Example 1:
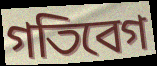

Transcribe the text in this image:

গতিবেগ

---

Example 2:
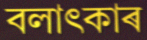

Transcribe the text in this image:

বলাৎকাৰ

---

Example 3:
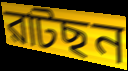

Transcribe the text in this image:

ৱাটছন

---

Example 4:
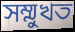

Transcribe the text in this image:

সম্মুখত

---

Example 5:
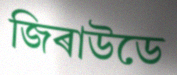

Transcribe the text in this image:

জিৰাউডে